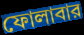
ফোলাবার